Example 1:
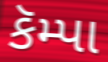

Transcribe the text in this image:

કૅમ્પા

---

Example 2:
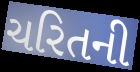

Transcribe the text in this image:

ચરિતની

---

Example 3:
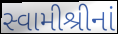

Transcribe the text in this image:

સ્વામીશ્રીનાં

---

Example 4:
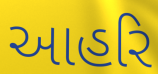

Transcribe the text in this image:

આહરિ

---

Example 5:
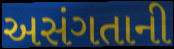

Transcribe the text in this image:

અસંગતાની